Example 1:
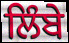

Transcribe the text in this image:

ਲਿੰਬੇ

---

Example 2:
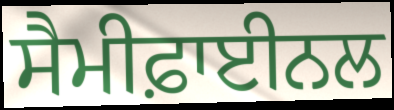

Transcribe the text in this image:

ਸੈਮੀਫ਼ਾਈਨਲ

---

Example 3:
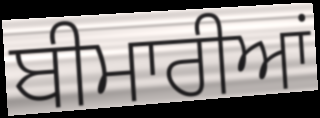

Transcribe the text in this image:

ਬੀਮਾਰੀਆਂ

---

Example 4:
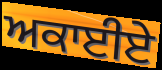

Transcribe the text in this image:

ਅਕਾਈਏ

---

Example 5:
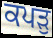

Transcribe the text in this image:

ਕਪੜੁ